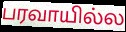
பரவாயில்ல